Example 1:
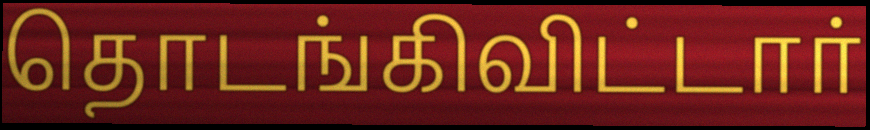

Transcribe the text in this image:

தொடங்கிவிட்டார்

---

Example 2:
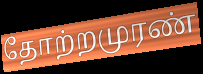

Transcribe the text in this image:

தோற்றமுரண்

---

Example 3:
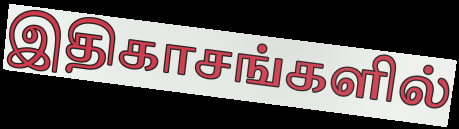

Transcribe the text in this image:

இதிகாசங்களில்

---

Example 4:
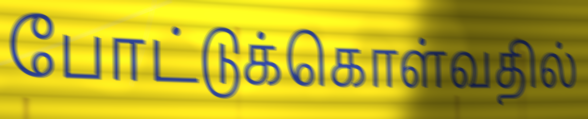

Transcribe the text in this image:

போட்டுக்கொள்வதில்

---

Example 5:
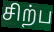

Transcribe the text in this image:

சிற்ப